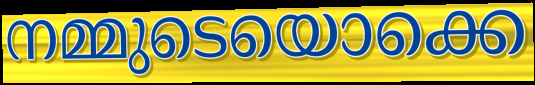
നമ്മുടെയൊക്കെ